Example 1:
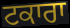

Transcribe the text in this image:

ਟਕਾਰਾ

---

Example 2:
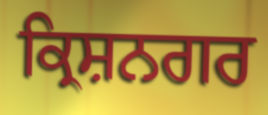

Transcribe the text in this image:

ਕ੍ਰਿਸ਼ਨਗਰ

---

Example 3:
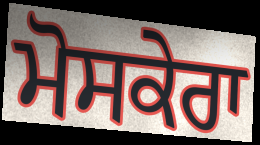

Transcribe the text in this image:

ਮੋਸਕੇਰਾ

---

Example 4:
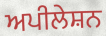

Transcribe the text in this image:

ਅਪੀਲੇਸ਼ਨ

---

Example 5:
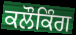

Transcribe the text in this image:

ਕਲੌਕਿੰਗ